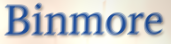
Binmore